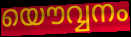
യൌവ്വനം